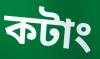
কটাং